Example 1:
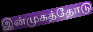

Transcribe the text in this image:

இன்முகத்தோடு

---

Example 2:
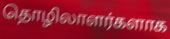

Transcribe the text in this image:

தொழிலாளர்களாக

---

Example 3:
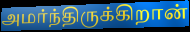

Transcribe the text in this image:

அமர்ந்திருக்கிறான்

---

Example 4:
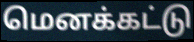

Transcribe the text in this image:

மெனக்கட்டு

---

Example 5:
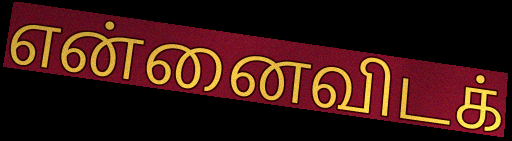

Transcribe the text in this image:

என்னைவிடக்